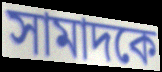
সামাদকে